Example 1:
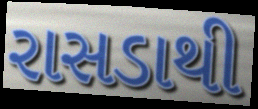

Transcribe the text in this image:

રાસડાથી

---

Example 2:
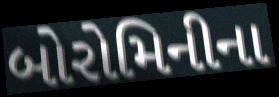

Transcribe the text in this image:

બોરોમિનીના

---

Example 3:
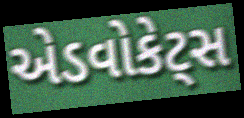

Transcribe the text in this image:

એડવોકેટ્સ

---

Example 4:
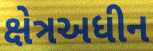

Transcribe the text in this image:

ક્ષેત્રઅધીન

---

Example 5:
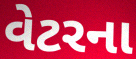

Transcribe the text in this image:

વેટરના